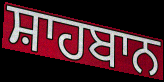
ਸ਼ਾਹਬਾਨ